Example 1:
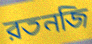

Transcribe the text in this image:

রতনজি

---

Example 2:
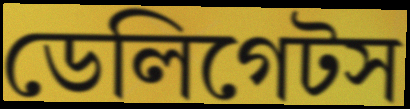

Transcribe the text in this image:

ডেলিগেটস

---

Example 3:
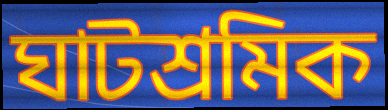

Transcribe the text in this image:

ঘাটশ্রমিক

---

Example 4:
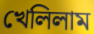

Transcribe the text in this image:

খেলিলাম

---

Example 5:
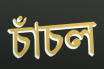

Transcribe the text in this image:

চাঁচল